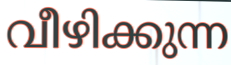
വീഴിക്കുന്ന